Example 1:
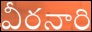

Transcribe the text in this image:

వీరనారి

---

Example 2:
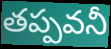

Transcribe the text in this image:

తప్పవనీ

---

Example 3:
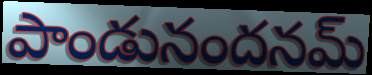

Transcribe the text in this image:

పాండునందనమ్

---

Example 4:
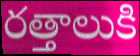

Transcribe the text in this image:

రత్తాలుకి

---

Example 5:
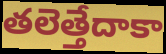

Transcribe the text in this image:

తలెత్తేదాకా